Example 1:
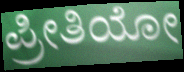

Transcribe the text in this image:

ಪ್ರೀತಿಯೋ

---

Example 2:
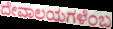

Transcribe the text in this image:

ದೇವಾಲಯಗಳೆಂಬ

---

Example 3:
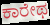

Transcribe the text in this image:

ಕಾರೇಥ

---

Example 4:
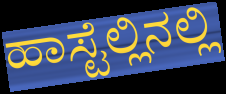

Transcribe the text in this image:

ಹಾಸ್ಟೆಲ್ಲಿನಲ್ಲಿ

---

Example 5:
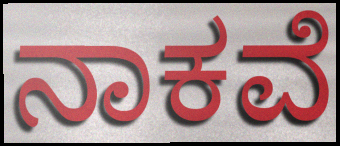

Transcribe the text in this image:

ನಾಕವೆ